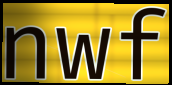
nwf